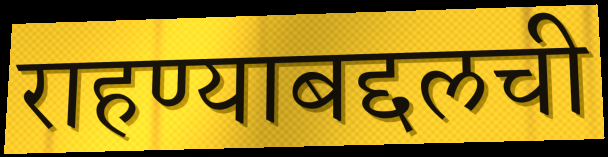
राहण्याबद्दलची